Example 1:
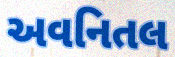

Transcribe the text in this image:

અવનિતલ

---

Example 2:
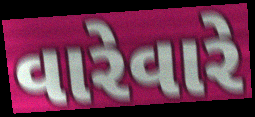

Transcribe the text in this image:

વારેવારે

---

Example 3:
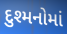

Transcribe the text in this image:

દુશ્મનોમાં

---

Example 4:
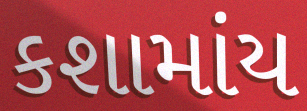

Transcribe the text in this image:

કશામાંય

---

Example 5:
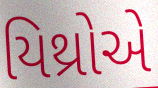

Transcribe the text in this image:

યિથ્રોએ